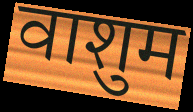
वाशुम